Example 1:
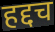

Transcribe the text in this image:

हद्दच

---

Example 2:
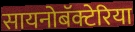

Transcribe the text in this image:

सायनोबॅक्टेरिया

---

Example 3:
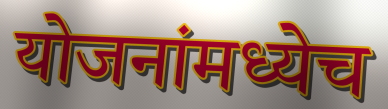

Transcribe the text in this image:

योजनांमध्येच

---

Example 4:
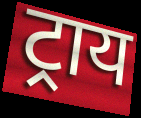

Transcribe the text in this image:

ट्राय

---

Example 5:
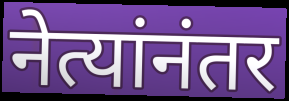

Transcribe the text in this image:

नेत्यांनंतर